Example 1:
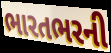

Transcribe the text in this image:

ભારતભરની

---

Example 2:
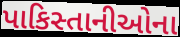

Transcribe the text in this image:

પાકિસ્તાનીઓના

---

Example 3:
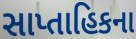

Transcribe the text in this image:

સાપ્તાહિકના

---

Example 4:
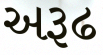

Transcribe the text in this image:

અરૂઢ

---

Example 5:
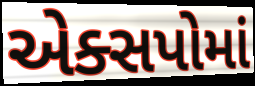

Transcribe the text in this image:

એક્સપોમાં